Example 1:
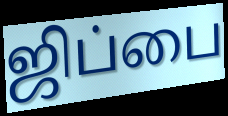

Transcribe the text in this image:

ஜிப்பை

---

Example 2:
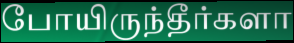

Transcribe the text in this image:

போயிருந்தீர்களா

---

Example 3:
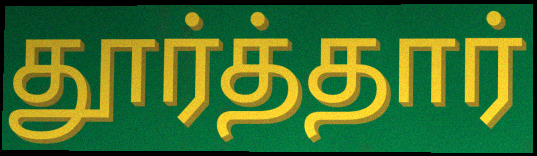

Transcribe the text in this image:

தூர்த்தார்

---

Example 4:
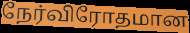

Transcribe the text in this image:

நேர்விரோதமான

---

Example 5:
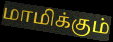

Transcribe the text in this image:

மாமிக்கும்